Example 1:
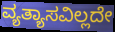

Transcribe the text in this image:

ವ್ಯತ್ಯಾಸವಿಲ್ಲದೇ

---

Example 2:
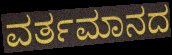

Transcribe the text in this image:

ವರ್ತಮಾನದ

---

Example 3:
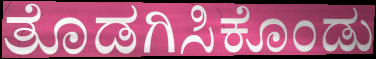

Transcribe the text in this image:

ತೊಡಗಿಸಿಕೊಂಡು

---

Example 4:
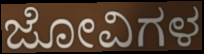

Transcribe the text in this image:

ಜೋವಿಗಳ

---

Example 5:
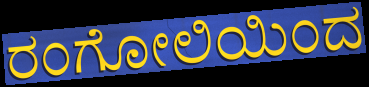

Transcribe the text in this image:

ರಂಗೋಲಿಯಿಂದ